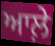
ਆਲ਼ੇ